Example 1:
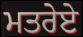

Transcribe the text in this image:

ਮਤਰੇਏ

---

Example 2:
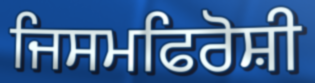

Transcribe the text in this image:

ਜਿਸਮਫਿਰੋਸ਼ੀ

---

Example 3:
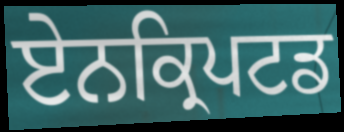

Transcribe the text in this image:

ਏਨਕ੍ਰਿਪਟਡ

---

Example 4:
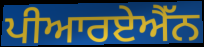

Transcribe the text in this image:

ਪੀਆਰਏਐੱਨ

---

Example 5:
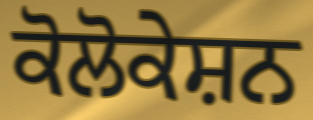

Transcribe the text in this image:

ਕੋਲੋਕੇਸ਼ਨ